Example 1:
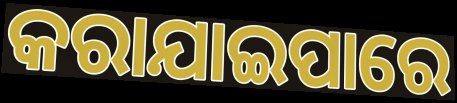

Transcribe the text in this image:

କରାଯାଇପାରେ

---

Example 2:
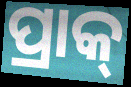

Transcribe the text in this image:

ପ୍ରାକ୍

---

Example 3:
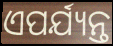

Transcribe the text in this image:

ଏପର୍ଯ୍ୟନ୍ତ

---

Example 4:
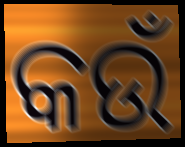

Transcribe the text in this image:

କଉଁ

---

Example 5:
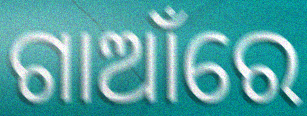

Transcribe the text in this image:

ଗାଆଁରେ